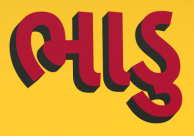
ભાડુ